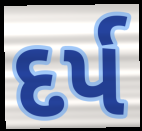
દર્પ